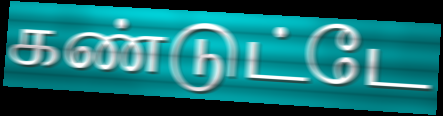
கண்டுட்டே